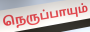
நெருப்பாயும்